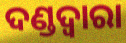
ଦଣ୍ଡଦ୍ୱାରା